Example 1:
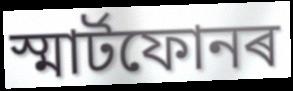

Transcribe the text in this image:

স্মাৰ্টফোনৰ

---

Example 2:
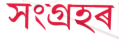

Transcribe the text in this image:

সংগ্ৰহৰ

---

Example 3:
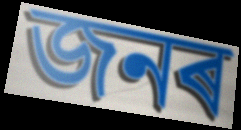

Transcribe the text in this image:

জনৰ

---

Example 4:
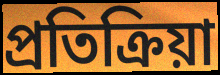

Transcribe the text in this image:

প্ৰতিক্ৰিয়া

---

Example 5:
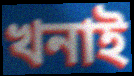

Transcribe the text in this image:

খনাই